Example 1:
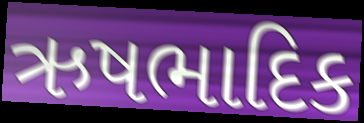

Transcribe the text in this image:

ઋષભાદિક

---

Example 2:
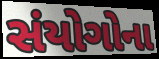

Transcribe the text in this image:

સંયોગોના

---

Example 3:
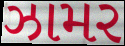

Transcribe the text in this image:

ઝામર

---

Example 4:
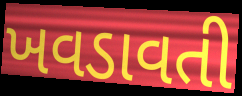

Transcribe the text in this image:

ખવડાવતી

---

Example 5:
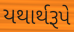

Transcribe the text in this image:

યથાર્થરૂપે